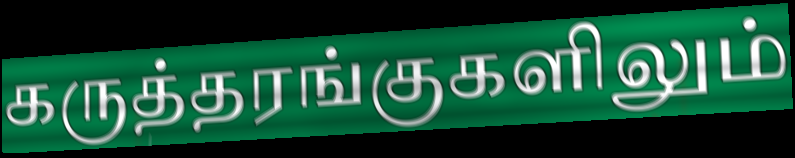
கருத்தரங்குகளிலும்